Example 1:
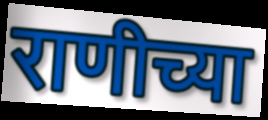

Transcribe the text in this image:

राणीच्या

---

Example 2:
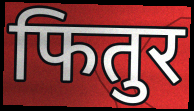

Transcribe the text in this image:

फितुर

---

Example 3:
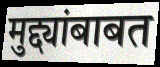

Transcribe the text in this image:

मुद्द्यांबाबत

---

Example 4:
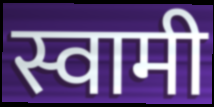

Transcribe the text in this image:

स्वामी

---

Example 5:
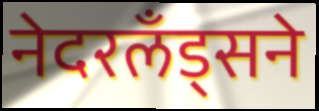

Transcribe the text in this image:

नेदरलँड्सने